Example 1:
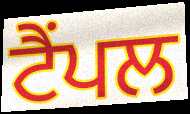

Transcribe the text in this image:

ਟੈਂਪਲ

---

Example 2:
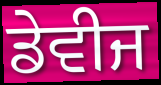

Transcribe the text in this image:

ਡੇਵੀਜ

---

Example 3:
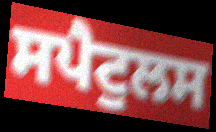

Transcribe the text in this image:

ਸਪੈਟੁਲਸ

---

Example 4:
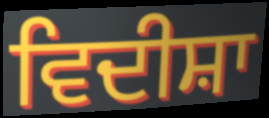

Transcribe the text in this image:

ਵਿਦੀਸ਼ਾ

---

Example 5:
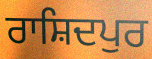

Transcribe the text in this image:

ਰਾਸ਼ਿਦਪੁਰ